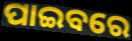
ପାଇବରେ